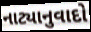
નાટ્યાનુવાદો